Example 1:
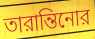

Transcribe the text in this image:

তারান্তিনোর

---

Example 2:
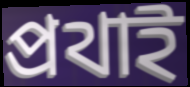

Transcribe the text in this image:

প্রথাই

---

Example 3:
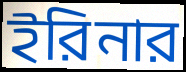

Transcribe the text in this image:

ইরিনার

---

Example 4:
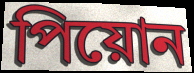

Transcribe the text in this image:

পিয়োন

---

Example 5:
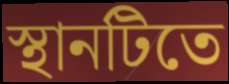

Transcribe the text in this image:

স্থানটিতে